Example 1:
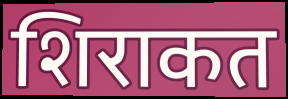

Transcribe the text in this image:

शिराकत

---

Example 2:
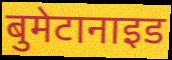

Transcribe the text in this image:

बुमेटानाइड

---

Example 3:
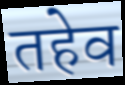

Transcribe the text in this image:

तहेव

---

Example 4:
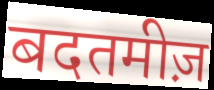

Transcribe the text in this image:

बदतमीज़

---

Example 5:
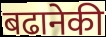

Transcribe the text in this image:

बढानेकी